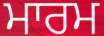
ਮਾਰਮ